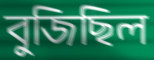
বুজিছিল